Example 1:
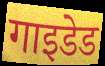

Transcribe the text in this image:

गाइडेड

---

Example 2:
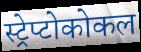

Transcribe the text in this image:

स्ट्रेप्टोकोकल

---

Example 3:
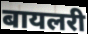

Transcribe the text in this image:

बायलरी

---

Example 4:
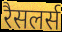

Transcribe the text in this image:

रैसलर्स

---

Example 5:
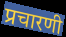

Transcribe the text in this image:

प्रचारणी